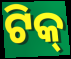
ଟିକ୍